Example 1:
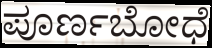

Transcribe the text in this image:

ಪೂರ್ಣಬೋಧೆ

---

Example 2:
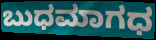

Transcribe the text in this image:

ಬುಧಮಾಗಧ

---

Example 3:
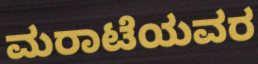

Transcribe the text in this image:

ಮರಾಟೆಯವರ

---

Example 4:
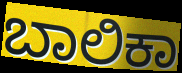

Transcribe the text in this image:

ಬಾಲಿಕಾ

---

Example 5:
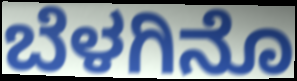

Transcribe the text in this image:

ಬೆಳಗಿನೊ